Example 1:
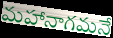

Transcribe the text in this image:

మహానాగమనే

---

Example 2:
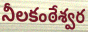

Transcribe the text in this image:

నీలకంఠేశ్వర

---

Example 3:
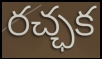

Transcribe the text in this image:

రచ్ఛక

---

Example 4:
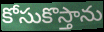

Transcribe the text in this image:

కోసుకొస్తాను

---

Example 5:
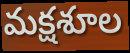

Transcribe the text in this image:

మక్షశూల